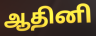
ஆதினி